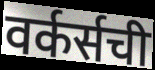
वर्कर्सची